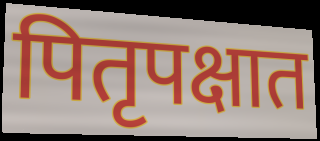
पितृपक्षात